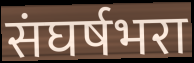
संघर्षभरा